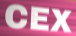
CEX